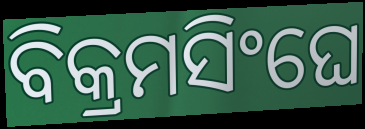
ବିକ୍ରମସିଂଘେ